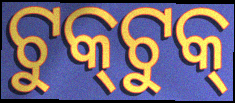
ଟୁକ୍‌ଟୁକ୍